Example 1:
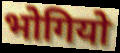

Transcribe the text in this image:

भोगियो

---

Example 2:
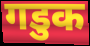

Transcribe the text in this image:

गडुक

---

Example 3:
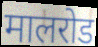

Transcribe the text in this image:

मालरोड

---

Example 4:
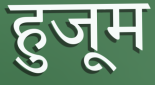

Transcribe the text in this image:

हुजूम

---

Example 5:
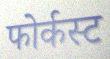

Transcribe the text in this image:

फोर्कस्ट